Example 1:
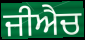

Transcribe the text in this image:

ਜੀਐਚ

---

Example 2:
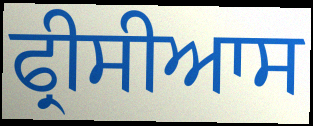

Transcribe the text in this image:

ਫ੍ਰੀਸੀਆਸ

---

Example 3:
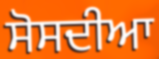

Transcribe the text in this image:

ਸੋਸਦੀਆ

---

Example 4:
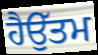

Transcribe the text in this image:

ਹੈਉੱਤਮ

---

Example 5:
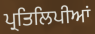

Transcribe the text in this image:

ਪ੍ਰਤਿਲਿਪੀਆਂ